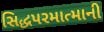
સિદ્ધપરમાત્માની